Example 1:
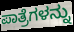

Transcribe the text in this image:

ಪಾತ್ರೆಗಳನ್ನು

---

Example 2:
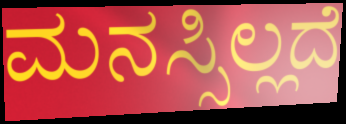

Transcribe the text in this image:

ಮನಸ್ಸಿಲ್ಲದೆ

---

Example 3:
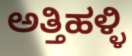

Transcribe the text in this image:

ಅತ್ತಿಹಳ್ಳಿ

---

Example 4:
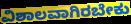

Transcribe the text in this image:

ವಿಶಾಲವಾಗಿರಬೇಕು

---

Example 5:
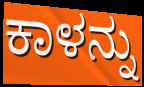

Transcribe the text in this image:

ಕಾಳನ್ನು